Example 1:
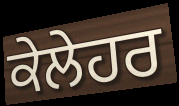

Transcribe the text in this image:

ਕੇਲੇਹਰ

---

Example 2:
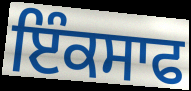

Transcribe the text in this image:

ਇੰਕਸਾਫ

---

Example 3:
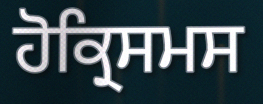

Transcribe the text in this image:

ਹੋਕ੍ਰਿਸਮਸ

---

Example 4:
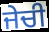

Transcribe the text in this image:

ਜੇਚੀ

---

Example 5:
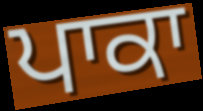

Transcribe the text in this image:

ਪਾਕਾ